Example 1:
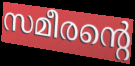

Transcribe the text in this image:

സമീരന്റെ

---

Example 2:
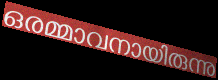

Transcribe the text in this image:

ഒരമ്മാവനായിരുന്നു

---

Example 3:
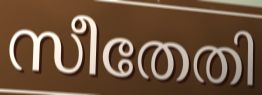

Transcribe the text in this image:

സീതേതി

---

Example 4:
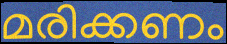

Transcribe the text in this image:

മരിക്കണം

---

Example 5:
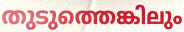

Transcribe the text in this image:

തുടുത്തെങ്കിലും